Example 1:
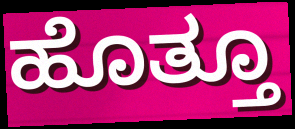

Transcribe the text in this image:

ಹೊತ್ತೂ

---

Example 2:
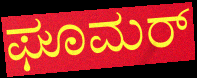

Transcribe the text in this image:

ಘೂಮರ್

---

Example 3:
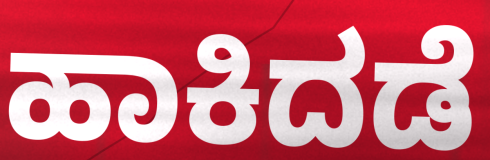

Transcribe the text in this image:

ಹಾಕಿದಡೆ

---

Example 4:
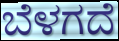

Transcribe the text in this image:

ಬೆಳಗದೆ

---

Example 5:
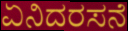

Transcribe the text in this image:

ಏನಿದರಸನೆ